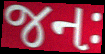
જનઃ